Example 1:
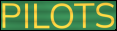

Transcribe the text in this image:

PILOTS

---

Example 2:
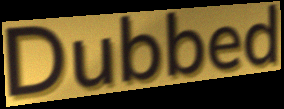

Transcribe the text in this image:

Dubbed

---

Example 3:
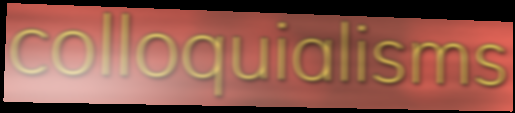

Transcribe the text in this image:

colloquialisms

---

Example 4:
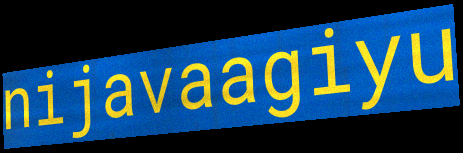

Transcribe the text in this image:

nijavaagiyu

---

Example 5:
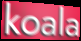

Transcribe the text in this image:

koala